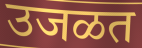
उजळत